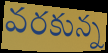
వరకున్న